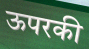
ऊपरकी